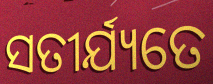
ସତୀର୍ଯ୍ୟତେ